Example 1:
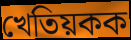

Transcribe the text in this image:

খেতিয়কক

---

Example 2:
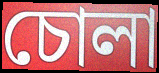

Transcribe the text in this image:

চোলা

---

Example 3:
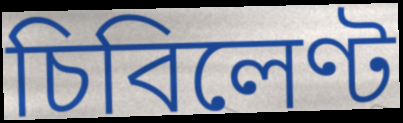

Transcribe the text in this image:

চিবিলেণ্ট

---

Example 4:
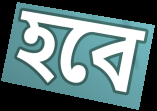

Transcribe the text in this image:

হবে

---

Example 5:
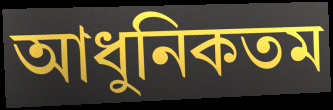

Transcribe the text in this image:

আধুনিকতম